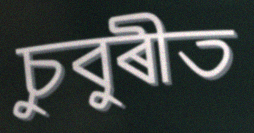
চুবুৰীত